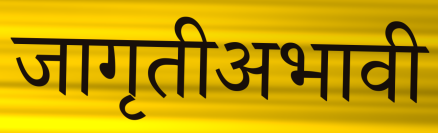
जागृतीअभावी